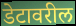
डेटावरील